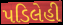
પડિલેહી